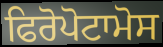
ਫਿਰੋਪੋਟਾਮੋਸ